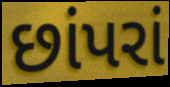
છાંપરાં